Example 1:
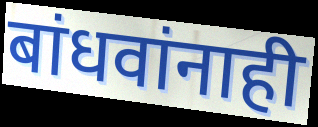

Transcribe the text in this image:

बांधवांनाही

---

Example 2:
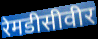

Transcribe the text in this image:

रेमडीसीवीर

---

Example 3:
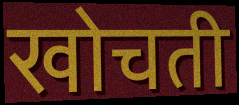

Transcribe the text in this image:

खोचती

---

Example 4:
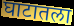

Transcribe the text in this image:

घाटातला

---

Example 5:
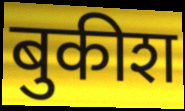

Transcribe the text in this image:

बुकीश